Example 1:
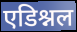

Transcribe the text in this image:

एडिश्नल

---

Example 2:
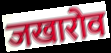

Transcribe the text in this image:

जखारोव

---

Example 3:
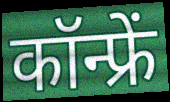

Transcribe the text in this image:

कॉन्फ्रें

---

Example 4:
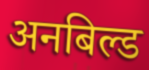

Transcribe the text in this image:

अनबिल्ड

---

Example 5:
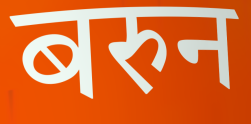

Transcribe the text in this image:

बरुन